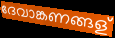
ദേവാങ്കണങ്ങള്